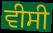
ਵੀਸੀ